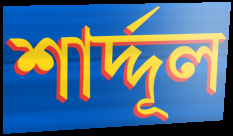
শার্দ্দূল